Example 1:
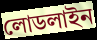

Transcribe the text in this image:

লোডলাইন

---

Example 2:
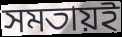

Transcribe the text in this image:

সমতায়ই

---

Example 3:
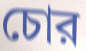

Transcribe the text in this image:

চোর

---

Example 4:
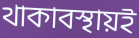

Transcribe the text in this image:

থাকাবস্থায়ই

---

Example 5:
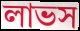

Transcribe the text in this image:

লাভস